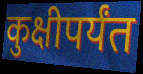
कुक्षीपर्यंत